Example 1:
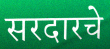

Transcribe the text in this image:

सरदारचे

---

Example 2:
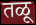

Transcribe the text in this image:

तळू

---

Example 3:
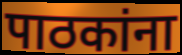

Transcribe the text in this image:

पाठकांना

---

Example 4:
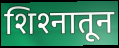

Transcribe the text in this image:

शिश्नातून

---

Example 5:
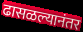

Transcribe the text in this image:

ढासळल्यानंतर